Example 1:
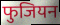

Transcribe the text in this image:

फुजियन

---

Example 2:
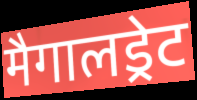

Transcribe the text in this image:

मैगालड्रेट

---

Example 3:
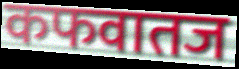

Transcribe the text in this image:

कफवातज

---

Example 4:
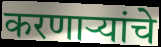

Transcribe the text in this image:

करणाऱ्यांचे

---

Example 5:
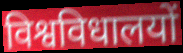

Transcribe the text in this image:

विश्वविधालयों